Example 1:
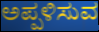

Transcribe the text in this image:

ಅಪ್ಪಳಿಸುವ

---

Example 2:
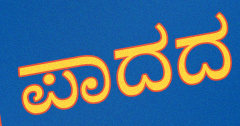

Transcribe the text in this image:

ಪಾದದ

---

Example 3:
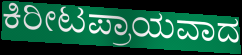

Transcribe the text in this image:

ಕಿರೀಟಪ್ರಾಯವಾದ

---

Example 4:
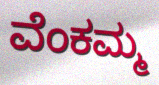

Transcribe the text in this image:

ವೆಂಕಮ್ಮ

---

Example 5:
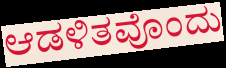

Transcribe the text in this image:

ಆಡಳಿತವೊಂದು